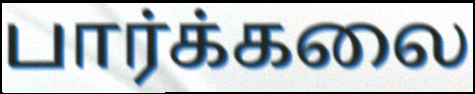
பார்க்கலை